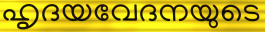
ഹൃദയവേദനയുടെ